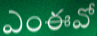
ఎంఈవో